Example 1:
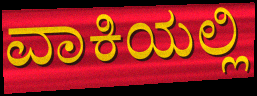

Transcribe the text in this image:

ವಾಕಿಯಲ್ಲಿ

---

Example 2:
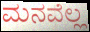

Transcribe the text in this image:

ಮನವೆಲ್ಲ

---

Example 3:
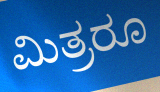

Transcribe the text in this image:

ಮಿತ್ರರೂ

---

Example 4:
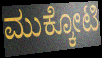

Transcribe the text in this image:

ಮುಕ್ಕೋಟಿ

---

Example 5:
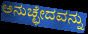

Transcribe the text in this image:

ಅನುಚ್ಛೇದವನ್ನು